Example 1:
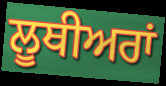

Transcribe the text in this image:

ਲੂਥੀਅਰਾਂ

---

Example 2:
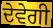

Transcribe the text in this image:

ਦੇਵੇਗੀ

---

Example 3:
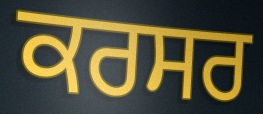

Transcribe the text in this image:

ਕਰਸਰ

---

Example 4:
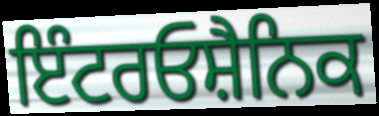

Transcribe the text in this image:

ਇੰਟਰਓਸ਼ੈਨਿਕ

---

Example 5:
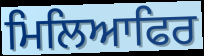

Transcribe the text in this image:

ਮਿਲਿਆਫਿਰ